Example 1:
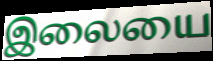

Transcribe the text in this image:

இலையை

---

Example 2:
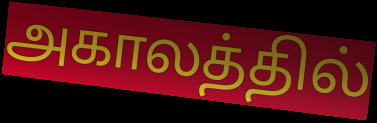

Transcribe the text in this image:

அகாலத்தில்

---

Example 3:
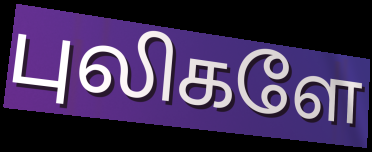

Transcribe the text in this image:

புலிகளே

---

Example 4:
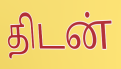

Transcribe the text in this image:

திடன்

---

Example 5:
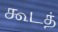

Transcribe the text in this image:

கூடத்